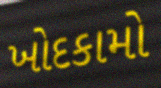
ખોદકામો